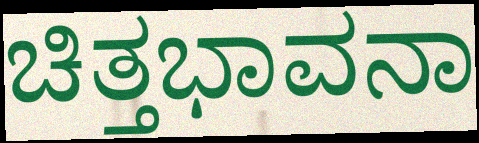
ಚಿತ್ತಭಾವನಾ